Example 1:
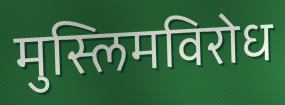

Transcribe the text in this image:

मुस्लिमविरोध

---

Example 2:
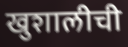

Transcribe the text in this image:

खुशालीची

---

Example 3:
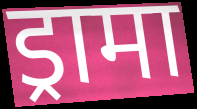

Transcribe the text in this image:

ड्रामा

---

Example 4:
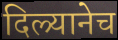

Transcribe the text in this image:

दिल्यानेच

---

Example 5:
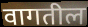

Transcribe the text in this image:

वागतील